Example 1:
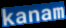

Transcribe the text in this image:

kanam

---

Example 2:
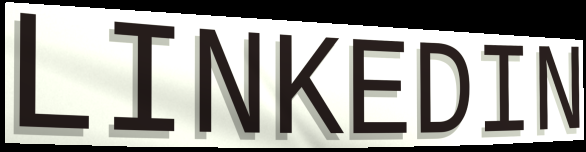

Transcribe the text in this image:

LINKEDIN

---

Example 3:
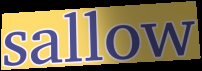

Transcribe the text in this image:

sallow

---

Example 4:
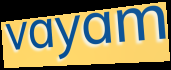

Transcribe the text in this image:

vayam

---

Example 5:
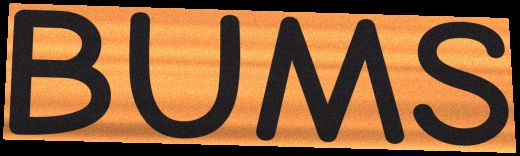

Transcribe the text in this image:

BUMS